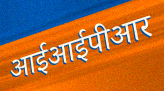
आईआईपीआर